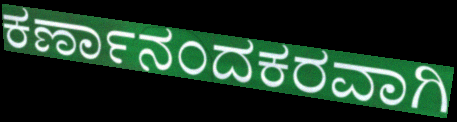
ಕರ್ಣಾನಂದಕರವಾಗಿ